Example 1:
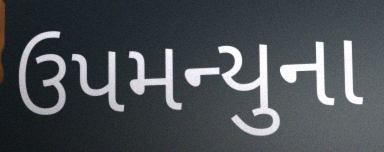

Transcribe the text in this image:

ઉપમન્યુના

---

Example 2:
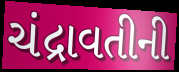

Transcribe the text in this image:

ચંદ્રાવતીની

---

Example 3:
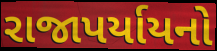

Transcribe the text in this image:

રાજાપર્યાયનો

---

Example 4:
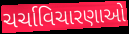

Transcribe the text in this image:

ચર્ચાવિચારણાઓ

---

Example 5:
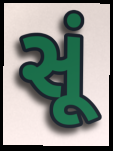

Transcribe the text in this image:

સૂં